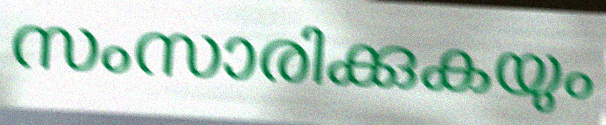
സംസാരിക്കുകയും